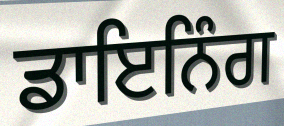
ਡਾਇਨਿੰਗ